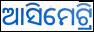
ଆସିମେଟ୍ରି